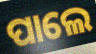
ପାଲେ